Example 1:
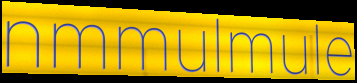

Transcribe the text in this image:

nmmulmule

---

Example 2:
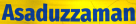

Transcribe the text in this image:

Asaduzzaman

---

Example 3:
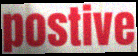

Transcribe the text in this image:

postive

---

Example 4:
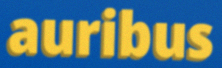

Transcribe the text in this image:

auribus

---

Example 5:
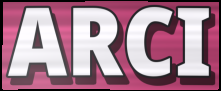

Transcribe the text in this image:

ARCI